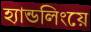
হ্যান্ডলিংয়ে